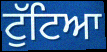
ਟੁੱਟਿਆ